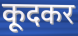
कूदकर